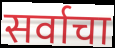
सर्वाचा